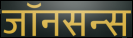
जॉनसन्स